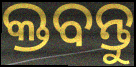
କ୍ତବନ୍ତୁ